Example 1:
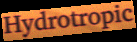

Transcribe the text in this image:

Hydrotropic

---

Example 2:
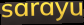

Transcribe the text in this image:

sarayu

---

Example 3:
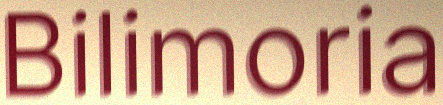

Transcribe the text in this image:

Bilimoria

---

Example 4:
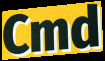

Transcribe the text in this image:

Cmd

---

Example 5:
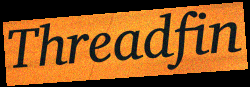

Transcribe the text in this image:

Threadfin